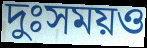
দুঃসময়ও